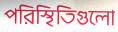
পরিস্থিতিগুলো